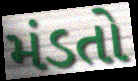
મંડતો